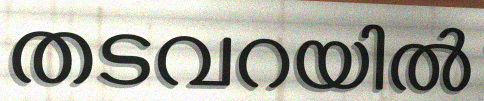
തടവറയിൽ